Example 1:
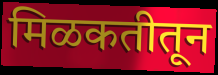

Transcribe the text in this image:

मिळकतीतून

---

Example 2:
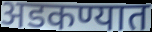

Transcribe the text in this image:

अडकण्यात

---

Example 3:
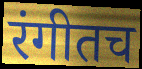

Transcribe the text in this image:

रंगीतच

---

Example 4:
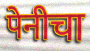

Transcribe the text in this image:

पेनीचा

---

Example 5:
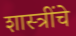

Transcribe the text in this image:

शास्त्रींचे